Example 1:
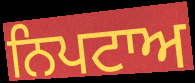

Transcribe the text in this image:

ਨਿਪਟਾਅ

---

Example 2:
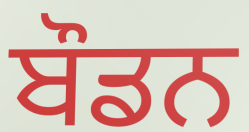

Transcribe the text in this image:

ਬੌਡਨ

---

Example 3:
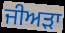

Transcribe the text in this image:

ਜੀਅੜਾ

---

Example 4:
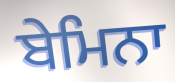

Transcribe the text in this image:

ਬੇਮਿਨਾ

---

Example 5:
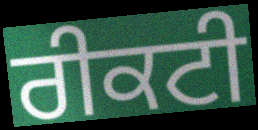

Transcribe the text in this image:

ਰੀਕਟੀ